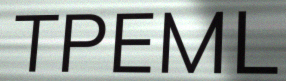
TPEML